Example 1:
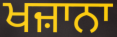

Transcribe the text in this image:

ਖਜ਼ਾਨਾ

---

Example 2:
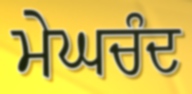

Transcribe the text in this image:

ਮੇਘਚੰਦ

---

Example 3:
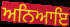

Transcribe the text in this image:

ਅਨਿਆਇ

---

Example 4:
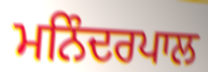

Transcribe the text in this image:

ਮਨਿੰਦਰਪਾਲ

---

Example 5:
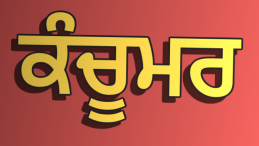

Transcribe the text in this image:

ਕੰਚੂਮਰ